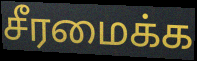
சீரமைக்க